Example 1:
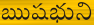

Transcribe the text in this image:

ఋషభుని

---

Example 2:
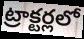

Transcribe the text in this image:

ట్రాక్టర్లలో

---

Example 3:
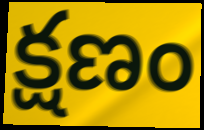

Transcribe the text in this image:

క్షణం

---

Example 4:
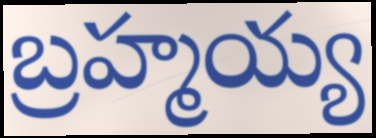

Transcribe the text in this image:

బ్రహ్మయ్య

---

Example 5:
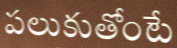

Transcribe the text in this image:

పలుకుతోంటే